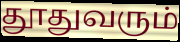
தூதுவரும்